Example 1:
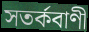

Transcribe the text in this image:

সতৰ্কবাণী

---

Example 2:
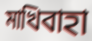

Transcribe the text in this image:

মাখিবাহা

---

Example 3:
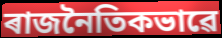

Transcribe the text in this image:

ৰাজনৈতিকভাৱে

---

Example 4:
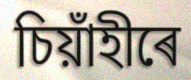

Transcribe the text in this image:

চিয়াঁহীৰে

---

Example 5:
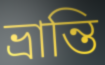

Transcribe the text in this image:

ভ্ৰান্তি